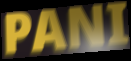
PANI